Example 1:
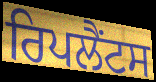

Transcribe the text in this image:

ਰਿਪਲੈਂਟਸ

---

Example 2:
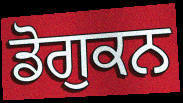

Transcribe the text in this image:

ਡੋਗੁਕਨ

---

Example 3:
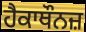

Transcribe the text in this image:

ਹੈਕਾਥੌਨਜ਼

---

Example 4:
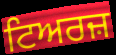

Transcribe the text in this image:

ਟਿਅਰਜ਼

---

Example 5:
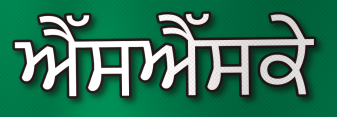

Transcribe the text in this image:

ਐੱਸਐੱਸਕੇ